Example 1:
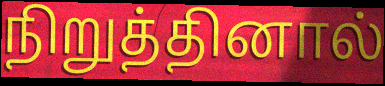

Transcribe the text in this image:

நிறுத்தினால்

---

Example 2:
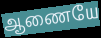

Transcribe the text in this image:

ஆணையே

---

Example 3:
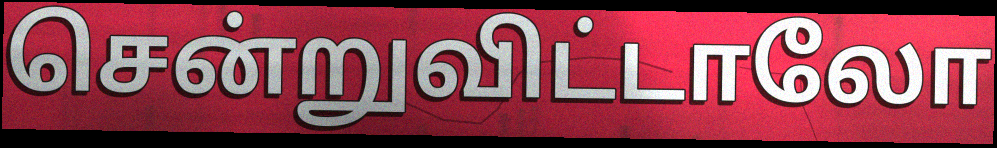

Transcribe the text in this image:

சென்றுவிட்டாலோ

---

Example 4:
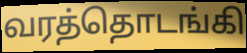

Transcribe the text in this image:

வரத்தொடங்கி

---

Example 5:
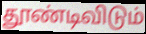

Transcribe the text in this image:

தூண்டிவிடும்